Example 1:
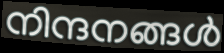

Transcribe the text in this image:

നിന്ദനങ്ങൾ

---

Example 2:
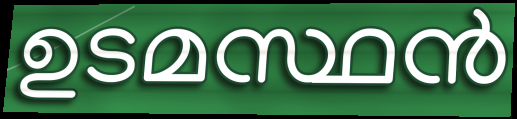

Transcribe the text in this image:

ഉടമസ്ഥൻ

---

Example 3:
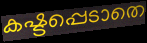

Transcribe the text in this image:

കഷ്ടപ്പെടാതെ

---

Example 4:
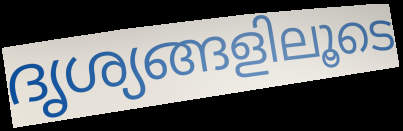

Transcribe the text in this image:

ദൃശ്യങ്ങളിലൂടെ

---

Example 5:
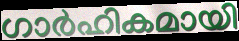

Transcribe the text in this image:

ഗാർഹികമായി